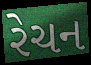
રેચન